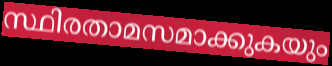
സ്ഥിരതാമസമാക്കുകയും